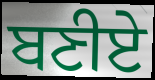
ਬਣੀਏ